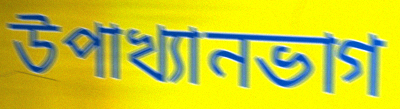
উপাখ্যানভাগ